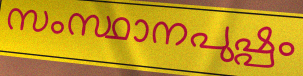
സംസ്ഥാനപുഷ്പം